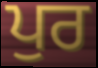
ਪੁਰ